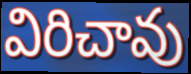
విరిచావు